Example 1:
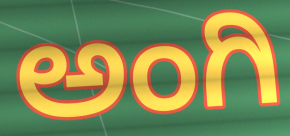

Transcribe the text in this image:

ಅಂಗಿ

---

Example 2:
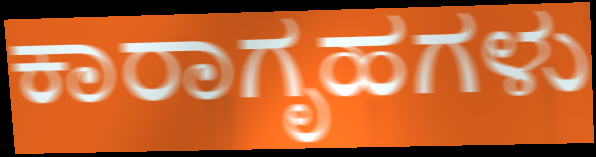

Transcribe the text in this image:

ಕಾರಾಗೃಹಗಳು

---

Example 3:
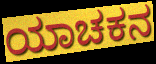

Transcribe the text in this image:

ಯಾಚಕನ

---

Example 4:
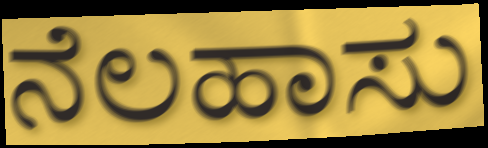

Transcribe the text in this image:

ನೆಲಹಾಸು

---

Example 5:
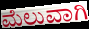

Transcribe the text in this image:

ಮೆಲುವಾಗಿ